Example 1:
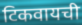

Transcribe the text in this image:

टिकवायची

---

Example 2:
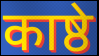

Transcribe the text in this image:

काष्ठे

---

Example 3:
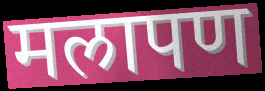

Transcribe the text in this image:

मलापण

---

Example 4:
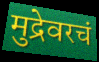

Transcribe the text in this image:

मुद्रेवरचं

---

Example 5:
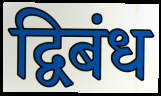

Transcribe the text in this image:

द्विबंध